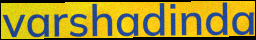
varshadinda